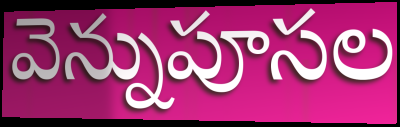
వెన్నుపూసల